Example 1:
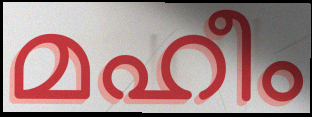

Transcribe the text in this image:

മഹീം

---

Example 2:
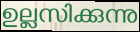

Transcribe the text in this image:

ഉല്ലസിക്കുന്നു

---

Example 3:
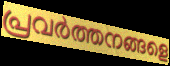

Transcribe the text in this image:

പ്രവർത്തനങ്ങളെ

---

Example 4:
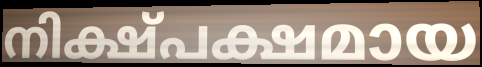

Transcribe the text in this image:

നിക്ഷ്പക്ഷമായ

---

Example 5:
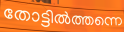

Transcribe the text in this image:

തോട്ടിൽത്തന്നെ